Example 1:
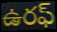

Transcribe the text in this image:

ఉరఫ్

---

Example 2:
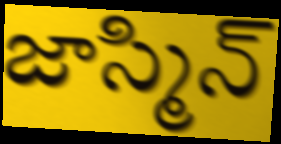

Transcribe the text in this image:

జాస్మిన్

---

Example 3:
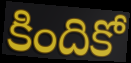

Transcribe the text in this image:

కిందికో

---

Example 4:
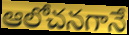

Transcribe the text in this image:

ఆలోచనగానే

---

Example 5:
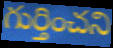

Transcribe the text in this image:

గుర్తించని